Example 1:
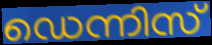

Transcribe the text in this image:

ഡെന്നിസ്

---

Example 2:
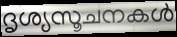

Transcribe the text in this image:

ദൃശ്യസൂചനകൾ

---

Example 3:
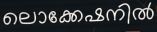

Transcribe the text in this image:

ലൊക്കേഷനിൽ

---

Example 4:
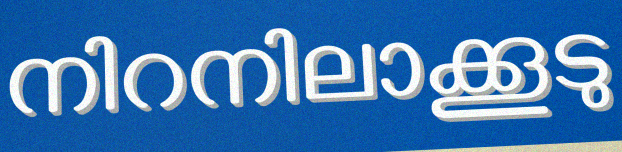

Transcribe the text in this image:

നിറനിലാക്കൂടു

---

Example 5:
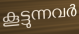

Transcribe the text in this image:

കൂട്ടുന്നവർ